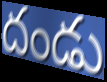
దండు